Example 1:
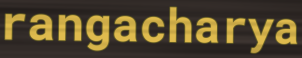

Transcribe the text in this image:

rangacharya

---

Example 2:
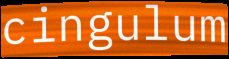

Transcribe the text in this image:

cingulum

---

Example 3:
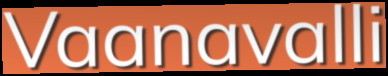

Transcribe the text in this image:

Vaanavalli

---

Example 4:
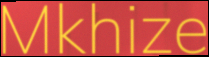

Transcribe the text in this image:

Mkhize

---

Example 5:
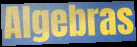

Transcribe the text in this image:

Algebras